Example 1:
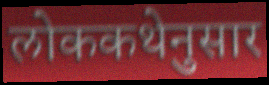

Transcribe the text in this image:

लोककथेनुसार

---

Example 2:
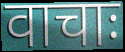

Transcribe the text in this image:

वाचाः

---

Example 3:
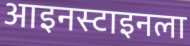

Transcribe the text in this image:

आइनस्टाइनला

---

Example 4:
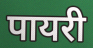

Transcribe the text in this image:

पायरी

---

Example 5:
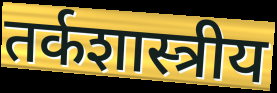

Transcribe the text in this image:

तर्कशास्त्रीय